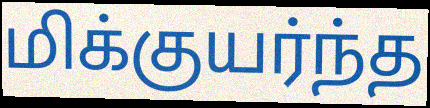
மிக்குயர்ந்த